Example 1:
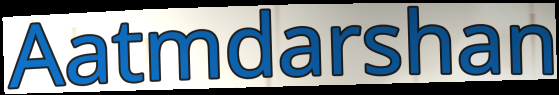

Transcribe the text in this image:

Aatmdarshan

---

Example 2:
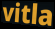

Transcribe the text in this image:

vitla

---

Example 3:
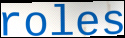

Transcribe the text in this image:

roles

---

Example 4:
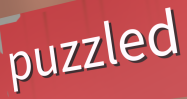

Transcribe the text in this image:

puzzled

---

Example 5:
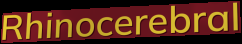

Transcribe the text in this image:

Rhinocerebral